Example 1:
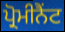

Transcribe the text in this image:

ਪ੍ਰੋਮੀਨੈਂਟ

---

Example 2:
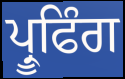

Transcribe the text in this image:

ਪ੍ਰੂਫਿੰਗ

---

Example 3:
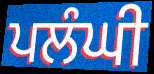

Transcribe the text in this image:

ਪਲੰਘੀ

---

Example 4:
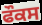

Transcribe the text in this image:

ਫੌਕਸ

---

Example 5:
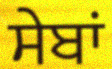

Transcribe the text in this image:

ਸੇਬਾਂ